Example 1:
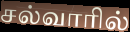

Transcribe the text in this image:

சல்வாரில்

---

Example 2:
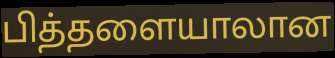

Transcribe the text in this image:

பித்தளையாலான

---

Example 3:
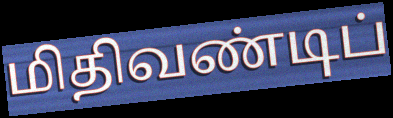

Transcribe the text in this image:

மிதிவண்டிப்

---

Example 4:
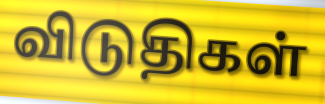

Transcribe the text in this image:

விடுதிகள்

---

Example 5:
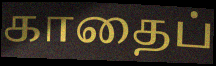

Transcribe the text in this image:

காதைப்